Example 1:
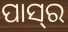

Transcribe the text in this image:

ପାସ୍‍ର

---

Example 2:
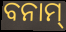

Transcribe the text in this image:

ବନାମ୍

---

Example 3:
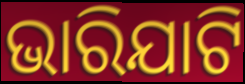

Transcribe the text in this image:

ଭାରିଯାଟି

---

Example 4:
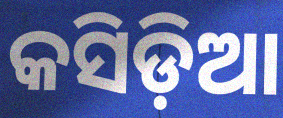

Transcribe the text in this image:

କସିଡ଼ିଆ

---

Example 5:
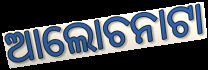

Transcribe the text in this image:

ଆଲୋଚନାଟା